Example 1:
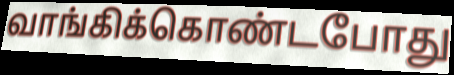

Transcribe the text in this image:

வாங்கிக்கொண்டபோது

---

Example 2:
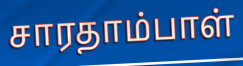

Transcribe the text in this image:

சாரதாம்பாள்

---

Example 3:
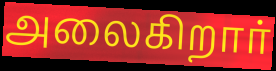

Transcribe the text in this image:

அலைகிறார்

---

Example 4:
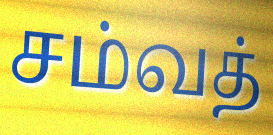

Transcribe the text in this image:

சம்வத்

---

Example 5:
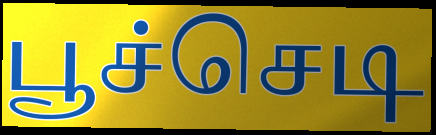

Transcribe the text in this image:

பூச்செடி